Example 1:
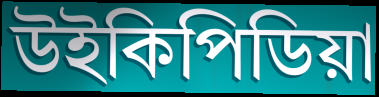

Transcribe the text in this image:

উইকিপিডিয়া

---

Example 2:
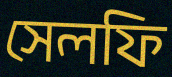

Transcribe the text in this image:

সেলফি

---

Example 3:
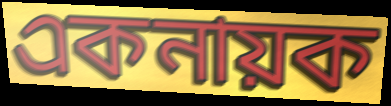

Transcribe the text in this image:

একনায়ক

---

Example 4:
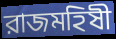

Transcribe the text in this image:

রাজমহিষী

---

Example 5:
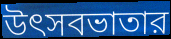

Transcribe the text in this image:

উৎসবভাতার